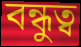
বন্ধুত্ব